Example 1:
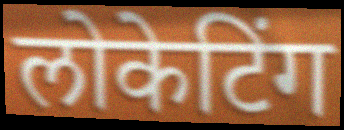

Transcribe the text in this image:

लोकेटिंग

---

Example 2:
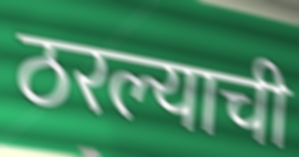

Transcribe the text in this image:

ठरल्याची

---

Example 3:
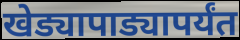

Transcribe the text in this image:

खेड्यापाड्यापर्यंत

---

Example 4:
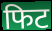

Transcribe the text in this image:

फिट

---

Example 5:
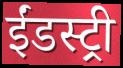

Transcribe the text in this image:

ईंडस्ट्री